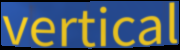
vertical